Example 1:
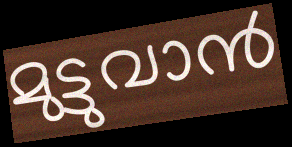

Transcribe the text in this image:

മുട്ടുവാൻ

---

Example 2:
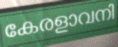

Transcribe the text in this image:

കേരളാവനി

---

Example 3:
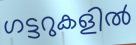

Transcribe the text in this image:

ഗട്ടറുകളിൽ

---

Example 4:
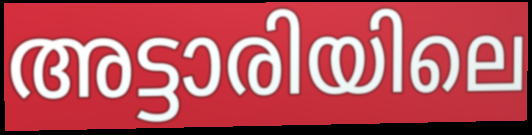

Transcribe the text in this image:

അട്ടാരിയിലെ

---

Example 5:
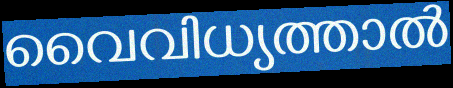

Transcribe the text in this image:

വൈവിധ്യത്താൽ